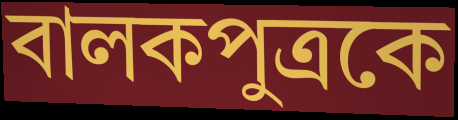
বালকপুত্রকে